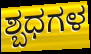
ಶ್ಬಧಗಳ